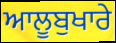
ਆਲੂਬੁਖਾਰੇ